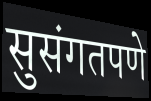
सुसंगतपणे